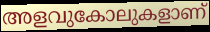
അളവുകോലുകളാണ്